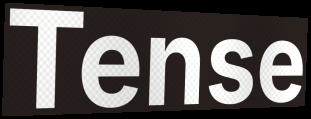
Tense